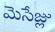
మెసేజ్లు